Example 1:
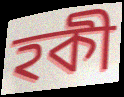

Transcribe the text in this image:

হকী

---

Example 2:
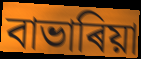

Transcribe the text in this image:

বাভাৰিয়া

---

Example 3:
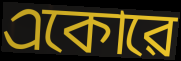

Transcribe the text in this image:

একোৱে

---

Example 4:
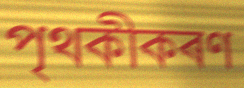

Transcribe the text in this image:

পৃথকীকৰণ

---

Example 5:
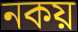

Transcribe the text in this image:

নকয়